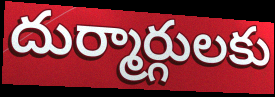
దుర్మార్గులకు